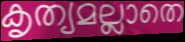
കൃത്യമല്ലാതെ